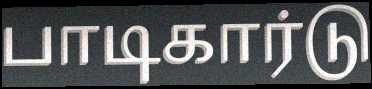
பாடிகார்டு